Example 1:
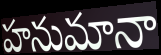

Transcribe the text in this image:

హనుమానా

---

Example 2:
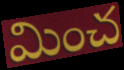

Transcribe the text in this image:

మించ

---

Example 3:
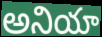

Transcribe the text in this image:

అనియా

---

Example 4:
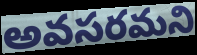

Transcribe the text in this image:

అవసరమని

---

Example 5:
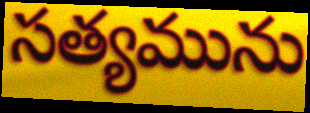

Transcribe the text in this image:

సత్యమును